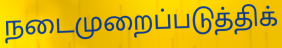
நடைமுறைப்படுத்திக்